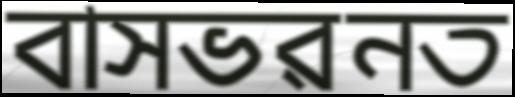
বাসভৱনত